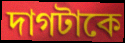
দাগটাকে